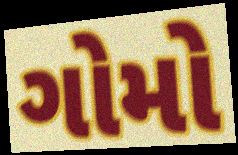
ગોમો